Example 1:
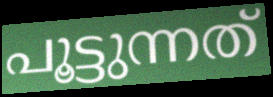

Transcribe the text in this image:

പൂട്ടുന്നത്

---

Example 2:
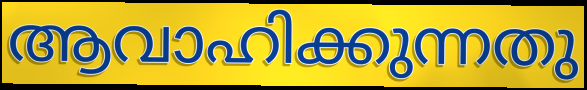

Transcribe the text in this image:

ആവാഹിക്കുന്നതു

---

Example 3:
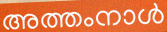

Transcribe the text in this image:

അത്തംനാൾ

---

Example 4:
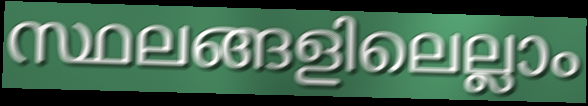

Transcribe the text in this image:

സ്ഥലങ്ങളിലെല്ലാം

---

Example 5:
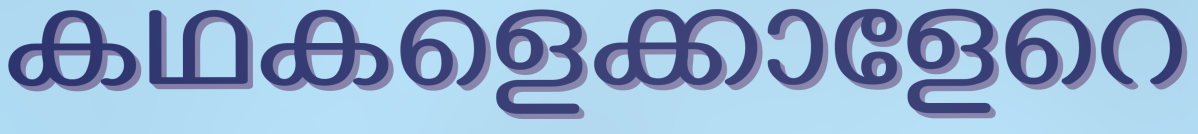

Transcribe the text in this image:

കഥകളെക്കാളേറെ